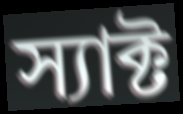
স্যাক্ট